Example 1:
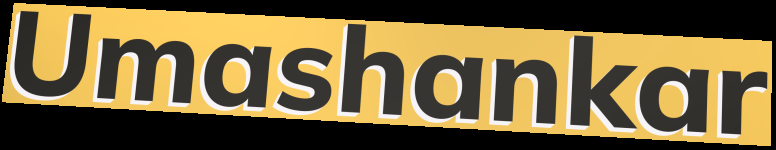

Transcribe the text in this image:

Umashankar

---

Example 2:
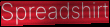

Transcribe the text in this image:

Spreadshirt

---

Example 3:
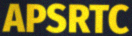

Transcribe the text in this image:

APSRTC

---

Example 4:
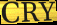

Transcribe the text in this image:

CRY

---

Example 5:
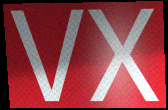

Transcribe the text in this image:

VX